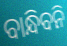
ବାନ୍ଧିବନି